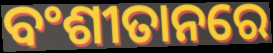
ବଂଶୀତାନରେ